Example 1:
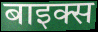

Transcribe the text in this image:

बाइक्स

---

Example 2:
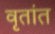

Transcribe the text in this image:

वृतांत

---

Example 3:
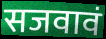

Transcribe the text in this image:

सजवावं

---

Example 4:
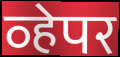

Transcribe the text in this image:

व्हेपर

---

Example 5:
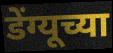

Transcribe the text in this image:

डेंग्यूच्या